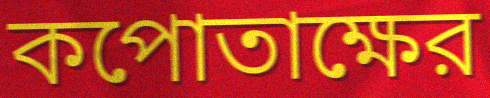
কপোতাক্ষের